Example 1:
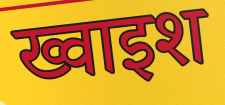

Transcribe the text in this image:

ख्वाइश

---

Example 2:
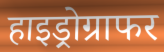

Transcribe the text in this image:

हाइड्रोग्राफर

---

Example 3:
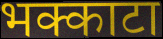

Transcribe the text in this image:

भक्काटा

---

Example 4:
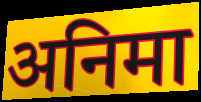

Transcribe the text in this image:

अनिमा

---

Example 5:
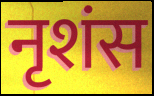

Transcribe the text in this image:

नृशंस